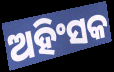
ଅହିଂସକ